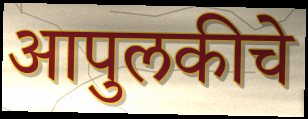
आपुलकीचे